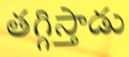
తగ్గిస్తాడు